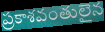
ప్రకాశవంతులైన